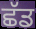
ਛੱਡ